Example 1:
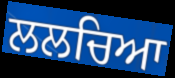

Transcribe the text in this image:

ਲਲਚਿਆ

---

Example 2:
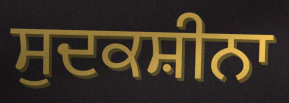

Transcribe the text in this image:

ਸੁਦਕਸ਼ੀਨਾ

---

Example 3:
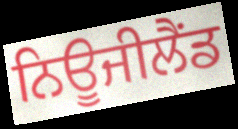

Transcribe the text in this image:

ਨਿਊਜੀਲੈਂਡ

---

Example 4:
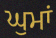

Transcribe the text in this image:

ਘੁਮਾਂ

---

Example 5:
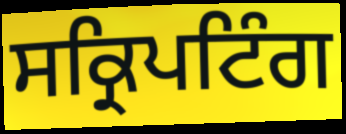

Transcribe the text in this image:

ਸਕ੍ਰਿਪਟਿੰਗ